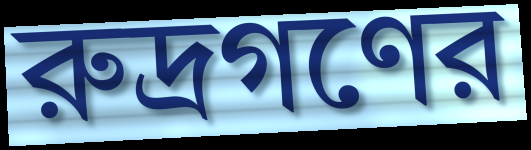
রুদ্রগণের